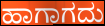
ಹಾಗಾಗದು